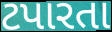
ટપારતા